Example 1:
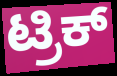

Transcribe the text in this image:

ಟ್ರಿಕ್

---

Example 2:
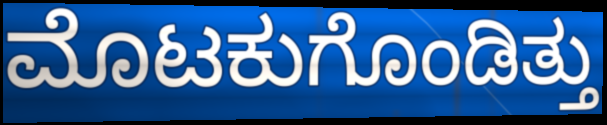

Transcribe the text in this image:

ಮೊಟಕುಗೊಂಡಿತ್ತು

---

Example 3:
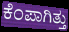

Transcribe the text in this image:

ಕೆಂಪಾಗಿತ್ತು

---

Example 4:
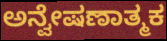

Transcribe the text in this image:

ಅನ್ವೇಷಣಾತ್ಮಕ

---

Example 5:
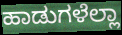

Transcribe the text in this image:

ಹಾಡುಗಳೆಲ್ಲಾ